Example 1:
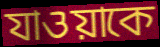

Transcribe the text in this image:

যাওয়াকে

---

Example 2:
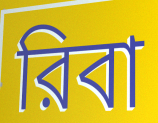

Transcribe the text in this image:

রিবা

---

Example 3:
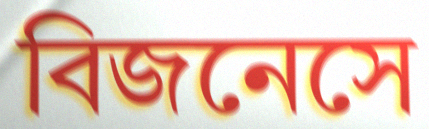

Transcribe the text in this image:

বিজনেসে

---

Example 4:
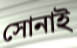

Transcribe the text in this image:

সোনাই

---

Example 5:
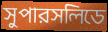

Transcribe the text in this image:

সুপারসলিডে